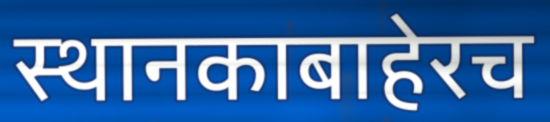
स्थानकाबाहेरच